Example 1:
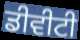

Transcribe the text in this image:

ਡੀਵੀਟੀ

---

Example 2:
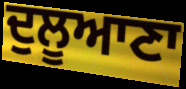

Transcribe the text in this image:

ਦੁਲੂਆਣਾ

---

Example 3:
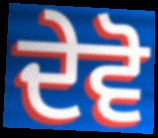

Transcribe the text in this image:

ਦੇਵੋ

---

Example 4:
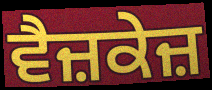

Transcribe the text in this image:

ਵੈਜ਼ਕੇਜ਼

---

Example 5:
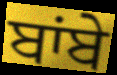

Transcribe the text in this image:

ਬਾਂਬੇ